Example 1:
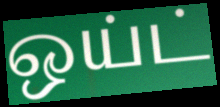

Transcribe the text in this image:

ஒய்ட்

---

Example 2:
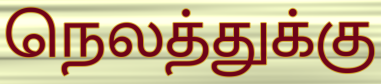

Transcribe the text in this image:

நெலத்துக்கு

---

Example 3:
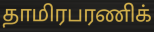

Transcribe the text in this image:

தாமிரபரணிக்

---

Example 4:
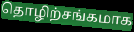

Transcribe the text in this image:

தொழிற்சங்கமாக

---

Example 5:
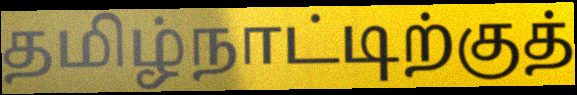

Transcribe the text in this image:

தமிழ்நாட்டிற்குத்